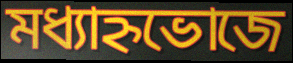
মধ্যাহ্নভোজে